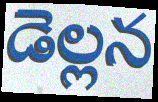
డెల్లన